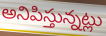
అనిపిస్తున్నట్లు